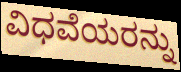
ವಿಧವೆಯರನ್ನು